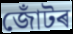
জোঁটৰ